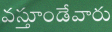
వస్తూండేవారు